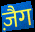
ज़ैग